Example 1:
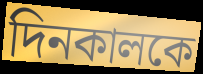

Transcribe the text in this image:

দিনকালকে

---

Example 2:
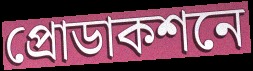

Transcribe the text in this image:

প্রোডাকশনে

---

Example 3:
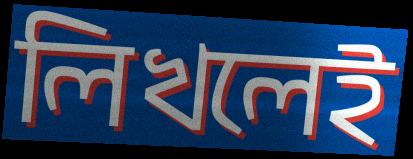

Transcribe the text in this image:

লিখলেই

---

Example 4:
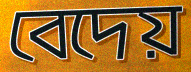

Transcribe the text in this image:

বেদেয়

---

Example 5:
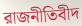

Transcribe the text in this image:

রাজনীতিবীদ